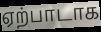
ஏற்பாடாக